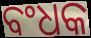
ବଂଧକ